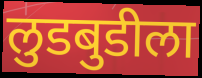
लुडबुडीला